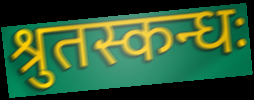
श्रुतस्कन्धः